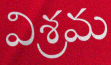
విశ్రమ